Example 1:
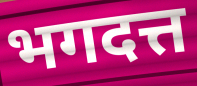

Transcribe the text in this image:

भगदत्त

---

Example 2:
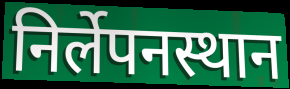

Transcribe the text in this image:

निर्लेपनस्थान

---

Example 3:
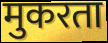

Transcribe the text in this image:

मुकरता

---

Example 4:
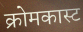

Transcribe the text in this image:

क्रोमकास्ट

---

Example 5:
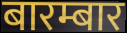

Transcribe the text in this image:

बारम्‍बार